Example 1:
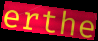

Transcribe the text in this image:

erthe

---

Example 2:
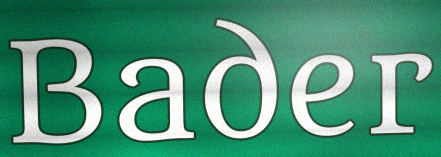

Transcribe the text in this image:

Bader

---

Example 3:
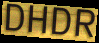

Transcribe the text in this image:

DHDR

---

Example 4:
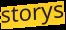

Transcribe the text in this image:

storys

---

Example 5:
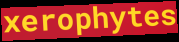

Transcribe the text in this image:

xerophytes